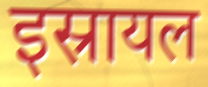
इस्रायल